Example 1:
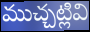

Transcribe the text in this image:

ముచ్చట్లివి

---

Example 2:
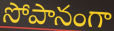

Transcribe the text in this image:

సోపానంగా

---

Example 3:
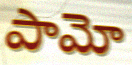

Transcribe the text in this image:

పామో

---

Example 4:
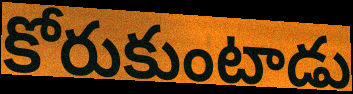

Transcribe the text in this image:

కోరుకుంటాడు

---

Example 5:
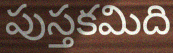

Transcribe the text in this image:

పుస్తకమిది